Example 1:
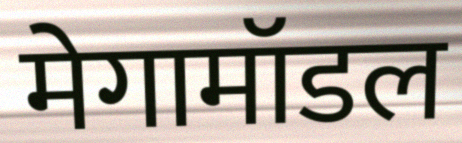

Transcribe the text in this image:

मेगामॉडल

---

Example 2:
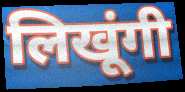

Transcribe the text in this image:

लिखूंगी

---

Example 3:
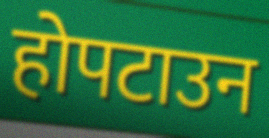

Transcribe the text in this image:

होपटाउन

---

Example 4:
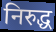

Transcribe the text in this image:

निरुद्ध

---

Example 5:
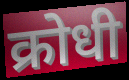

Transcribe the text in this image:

क्रोधी